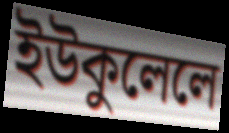
ইউকুলেলে